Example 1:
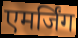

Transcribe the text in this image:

एमर्जिंग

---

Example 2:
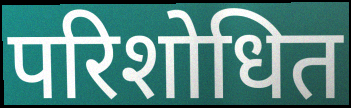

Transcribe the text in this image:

परिशोधित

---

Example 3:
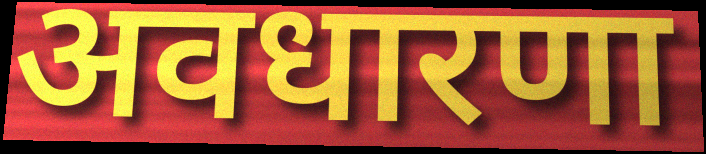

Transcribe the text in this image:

अवधारणा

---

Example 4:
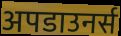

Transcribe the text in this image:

अपडाउनर्स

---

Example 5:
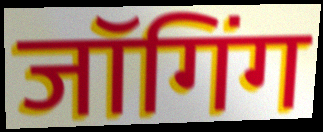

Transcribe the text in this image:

जॉगिंग